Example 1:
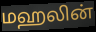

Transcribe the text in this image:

மஹலின்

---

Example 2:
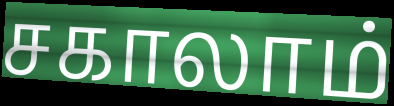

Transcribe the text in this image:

சகாலாம்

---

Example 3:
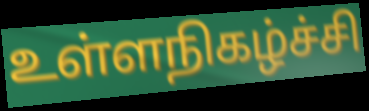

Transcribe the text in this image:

உள்ளநிகழ்ச்சி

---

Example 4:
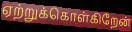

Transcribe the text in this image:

ஏற்றுக்கொள்கிறேன்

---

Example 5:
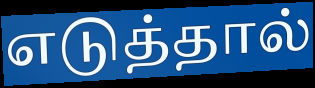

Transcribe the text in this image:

எடுத்தால்